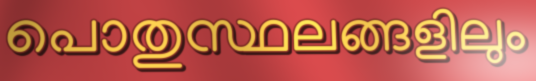
പൊതുസ്ഥലങ്ങളിലും